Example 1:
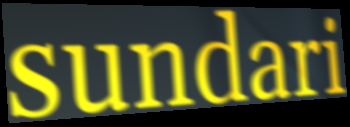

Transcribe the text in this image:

sundari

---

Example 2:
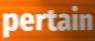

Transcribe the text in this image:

pertain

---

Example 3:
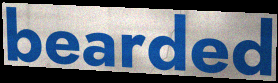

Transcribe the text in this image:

bearded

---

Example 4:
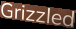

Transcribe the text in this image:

Grizzled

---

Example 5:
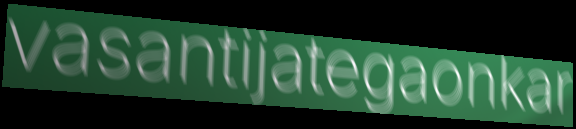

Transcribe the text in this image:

vasantijategaonkar